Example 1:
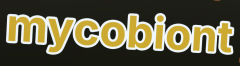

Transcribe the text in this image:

mycobiont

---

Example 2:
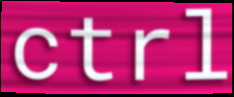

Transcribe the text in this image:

ctrl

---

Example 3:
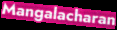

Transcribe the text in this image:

Mangalacharan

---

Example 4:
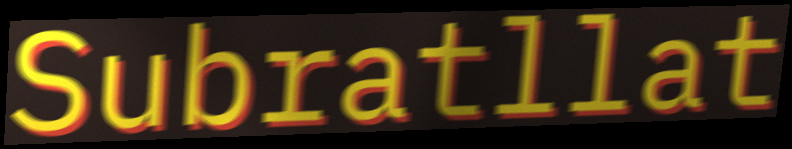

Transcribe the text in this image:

Subratllat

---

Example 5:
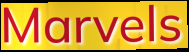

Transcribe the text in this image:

Marvels